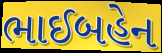
ભાઈબહેન